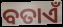
ବତାଏଁ